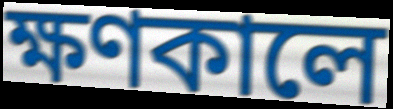
ক্ষণকালে